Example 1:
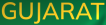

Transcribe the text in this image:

GUJARAT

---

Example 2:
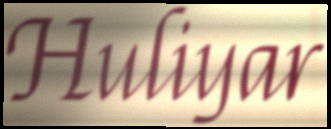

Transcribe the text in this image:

Huliyar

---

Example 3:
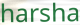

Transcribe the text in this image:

harsha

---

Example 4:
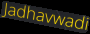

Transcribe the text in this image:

Jadhavwadi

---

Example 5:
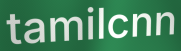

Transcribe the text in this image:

tamilcnn